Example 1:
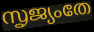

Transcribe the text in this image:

സൃജ്യംതേ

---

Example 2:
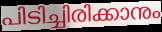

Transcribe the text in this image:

പിടിച്ചിരിക്കാനും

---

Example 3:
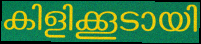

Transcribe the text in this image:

കിളിക്കൂടായി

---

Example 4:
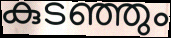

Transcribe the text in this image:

കുടഞ്ഞും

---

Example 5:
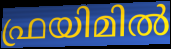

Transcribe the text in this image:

ഫ്രയിമിൽ